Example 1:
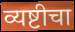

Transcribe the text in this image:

व्यष्टीचा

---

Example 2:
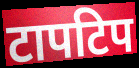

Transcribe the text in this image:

टापटिप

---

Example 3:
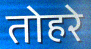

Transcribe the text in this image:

तोहरे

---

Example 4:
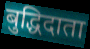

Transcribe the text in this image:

बुद्धिदाता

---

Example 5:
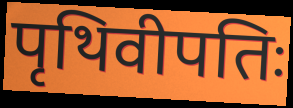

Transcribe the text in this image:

पृथिवीपतिः